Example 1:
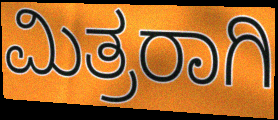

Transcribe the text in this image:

ಮಿತ್ರರಾಗಿ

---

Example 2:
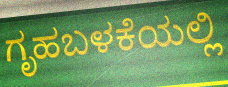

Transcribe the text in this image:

ಗೃಹಬಳಕೆಯಲ್ಲಿ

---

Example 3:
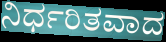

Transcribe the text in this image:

ನಿರ್ಧರಿತವಾದ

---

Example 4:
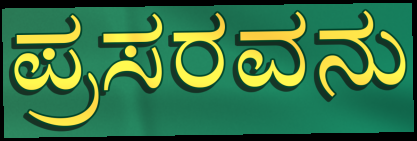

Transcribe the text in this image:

ಪ್ರಸರವನು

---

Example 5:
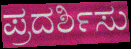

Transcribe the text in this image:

ಪ್ರದರ್ಶಿಸು